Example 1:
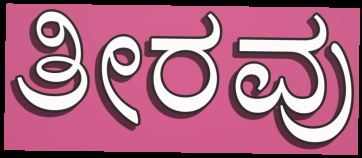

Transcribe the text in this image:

ತೀರವು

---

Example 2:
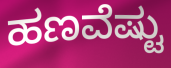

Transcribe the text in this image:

ಹಣವೆಷ್ಟು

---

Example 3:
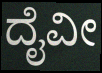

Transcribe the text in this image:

ದೈವೀ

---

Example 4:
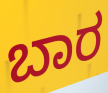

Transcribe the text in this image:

ಬಾರ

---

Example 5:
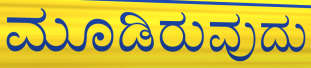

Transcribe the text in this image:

ಮೂಡಿರುವುದು